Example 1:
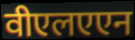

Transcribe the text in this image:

वीएलएएन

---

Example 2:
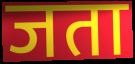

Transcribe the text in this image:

जता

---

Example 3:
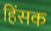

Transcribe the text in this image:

हिंसक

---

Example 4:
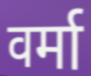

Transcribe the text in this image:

वर्मा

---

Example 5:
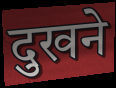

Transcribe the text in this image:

दुखने